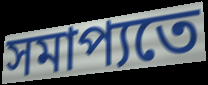
সমাপ্যতে